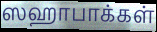
ஸஹாபாக்கள்